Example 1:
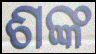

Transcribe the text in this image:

ଶଙ୍କ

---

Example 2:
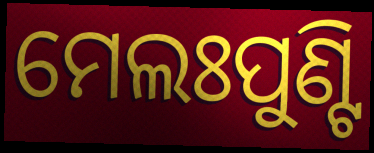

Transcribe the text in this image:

ମେଲଃପୁଣ୍ଟି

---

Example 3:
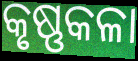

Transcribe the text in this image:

କୃଷ୍ଣକଳା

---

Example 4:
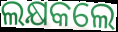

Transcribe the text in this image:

ଲକ୍ଷକଲେ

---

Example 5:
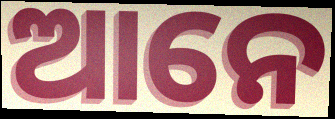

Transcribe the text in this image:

ଆନେ